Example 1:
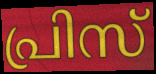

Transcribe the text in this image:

പ്രിസ്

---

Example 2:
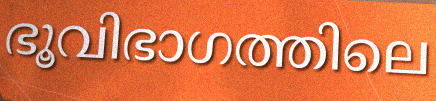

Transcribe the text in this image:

ഭൂവിഭാഗത്തിലെ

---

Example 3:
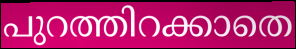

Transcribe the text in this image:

പുറത്തിറക്കാതെ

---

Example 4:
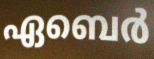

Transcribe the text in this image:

ഏബെർ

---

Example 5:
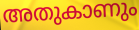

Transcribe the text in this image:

അതുകാണും